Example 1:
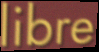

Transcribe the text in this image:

libre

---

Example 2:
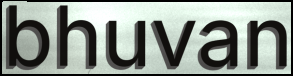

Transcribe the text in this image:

bhuvan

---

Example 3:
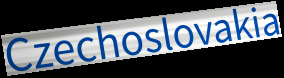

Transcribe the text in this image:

Czechoslovakia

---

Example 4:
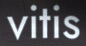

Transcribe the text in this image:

vitis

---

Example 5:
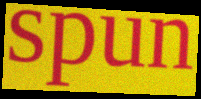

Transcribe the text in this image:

spun